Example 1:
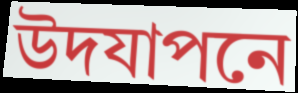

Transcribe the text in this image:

উদযাপনে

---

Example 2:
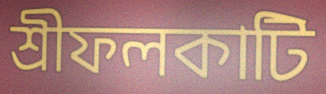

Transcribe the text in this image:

শ্রীফলকাটি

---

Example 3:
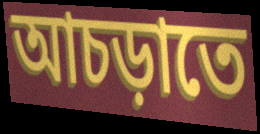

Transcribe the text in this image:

আচড়াতে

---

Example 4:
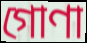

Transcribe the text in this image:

গোণা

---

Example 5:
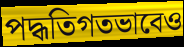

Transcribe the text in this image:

পদ্ধতিগতভাবেও